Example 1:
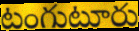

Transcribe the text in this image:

టంగుటూరు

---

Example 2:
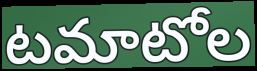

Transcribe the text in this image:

టమాటోల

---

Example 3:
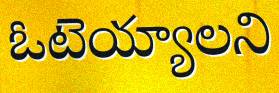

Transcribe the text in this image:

ఓటెయ్యాలని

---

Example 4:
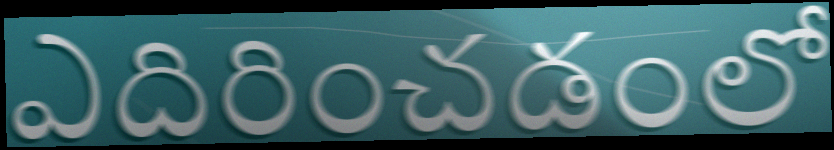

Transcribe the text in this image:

ఎదిరించడంలో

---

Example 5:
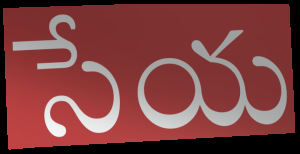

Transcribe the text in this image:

సేయ